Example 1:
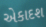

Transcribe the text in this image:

એકાદશ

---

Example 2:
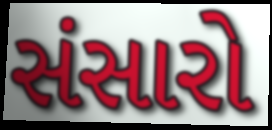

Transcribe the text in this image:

સંસારો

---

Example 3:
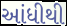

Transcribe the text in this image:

આંધીથી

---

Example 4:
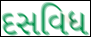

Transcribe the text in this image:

દસવિધ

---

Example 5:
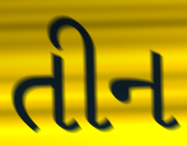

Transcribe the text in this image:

તીન